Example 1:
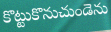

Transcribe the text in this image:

కొట్టుకొనుచుండెను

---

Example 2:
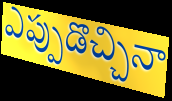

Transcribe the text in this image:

ఎప్పుడొచ్చినా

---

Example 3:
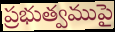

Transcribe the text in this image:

ప్రభుత్వముపై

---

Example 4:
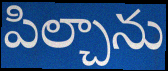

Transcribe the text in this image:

పిల్చాను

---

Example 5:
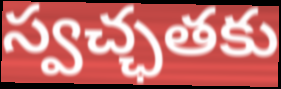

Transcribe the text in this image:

స్వచ్ఛతకు